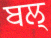
ਬਲ੍